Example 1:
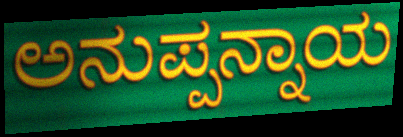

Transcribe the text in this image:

ಅನುಪ್ಪನ್ನಾಯ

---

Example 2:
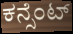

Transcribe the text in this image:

ಕನ್ಸೆಂಟ್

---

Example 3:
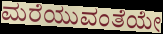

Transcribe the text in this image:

ಮರೆಯುವಂತೆಯೇ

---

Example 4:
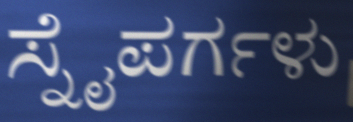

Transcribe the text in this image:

ಸ್ನೈಪರ್ಗಳು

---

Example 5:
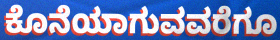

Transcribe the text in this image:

ಕೊನೆಯಾಗುವವರೆಗೂ